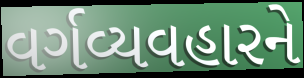
વર્ગવ્યવહારને